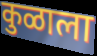
कुळाला